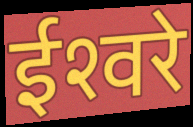
ईश्वरे